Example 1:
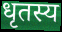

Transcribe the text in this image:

धृतस्य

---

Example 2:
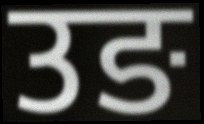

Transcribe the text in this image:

उङ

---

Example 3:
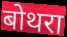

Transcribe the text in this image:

बोथरा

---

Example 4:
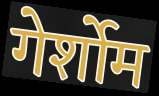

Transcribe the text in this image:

गेर्शोम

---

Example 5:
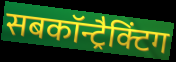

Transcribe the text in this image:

सबकॉन्ट्रैक्टिंग